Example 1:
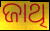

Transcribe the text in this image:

ଜାଥି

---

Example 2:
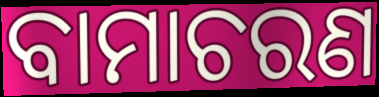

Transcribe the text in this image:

ବାମାଚରଣ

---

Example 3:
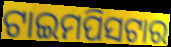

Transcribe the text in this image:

ଟାଇମପିସଟାର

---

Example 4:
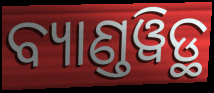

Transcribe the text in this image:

ବ୍ୟାଣ୍ଡୱିଡ୍ଥ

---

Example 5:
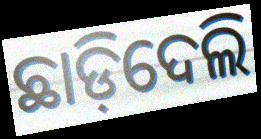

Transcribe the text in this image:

ଛାଡ଼ିଦେଲି